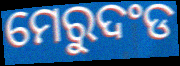
ମେରୁଦଂଡ